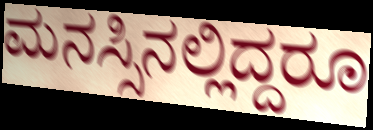
ಮನಸ್ಸಿನಲ್ಲಿದ್ದರೂ